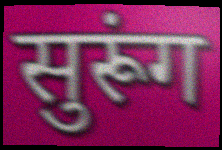
सुरूंग